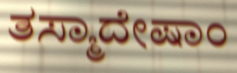
ತಸ್ಮಾದೇಷಾಂ